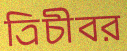
ত্রিচীবর